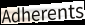
Adherents